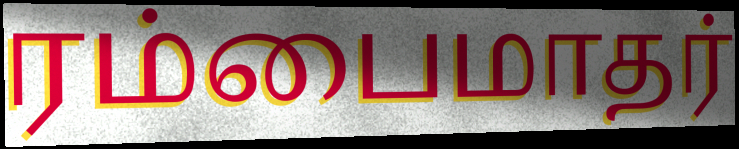
ரம்பைமாதர்